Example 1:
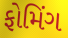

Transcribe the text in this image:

ફોમિંગ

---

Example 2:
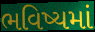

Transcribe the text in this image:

ભવિષ્યમાં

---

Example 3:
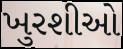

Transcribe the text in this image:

ખુરશીઓ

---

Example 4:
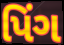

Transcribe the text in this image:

પિંગ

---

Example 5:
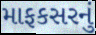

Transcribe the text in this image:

માફકસરનું